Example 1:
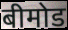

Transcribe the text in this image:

बीमोड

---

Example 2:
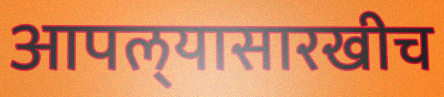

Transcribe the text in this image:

आपल्यासारखीच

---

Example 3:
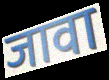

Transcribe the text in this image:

जावा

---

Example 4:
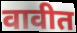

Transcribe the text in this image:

वावीत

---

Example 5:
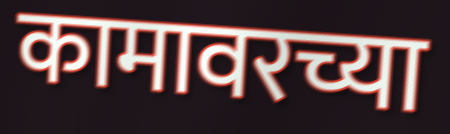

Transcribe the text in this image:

कामावरच्या